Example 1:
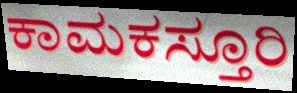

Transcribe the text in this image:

ಕಾಮಕಸ್ತೂರಿ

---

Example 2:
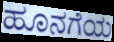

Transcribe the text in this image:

ಹೂನಗೆಯ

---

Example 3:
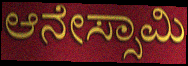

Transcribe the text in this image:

ಆನೇಸ್ಸಾಮಿ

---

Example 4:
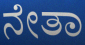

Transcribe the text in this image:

ನೇತಾ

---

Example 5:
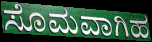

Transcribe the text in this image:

ಸೊಮವಾಗಿಹ